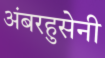
अंबरहुसेनी